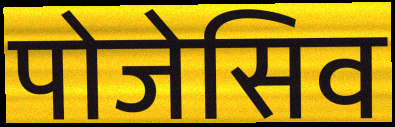
पोजेसिव